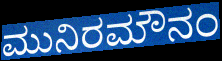
ಮುನಿರಮೌನಂ